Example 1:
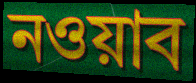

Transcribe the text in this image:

নওয়াব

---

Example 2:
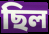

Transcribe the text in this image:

ছিল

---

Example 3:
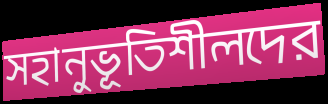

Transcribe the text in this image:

সহানুভূতিশীলদের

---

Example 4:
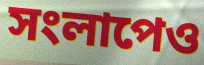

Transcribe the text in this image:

সংলাপেও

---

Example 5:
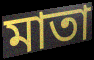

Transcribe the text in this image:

মাতা